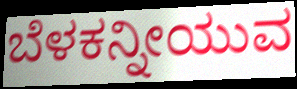
ಬೆಳಕನ್ನೀಯುವ